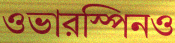
ওভারস্পিনও